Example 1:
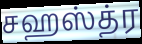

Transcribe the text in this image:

சஹஸ்த்ர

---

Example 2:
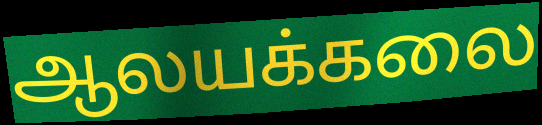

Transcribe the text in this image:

ஆலயக்கலை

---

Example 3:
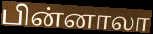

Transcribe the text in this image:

பின்னாலா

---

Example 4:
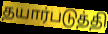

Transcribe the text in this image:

தயார்படுத்தி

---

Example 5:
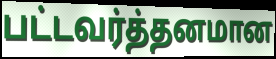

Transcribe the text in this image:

பட்டவர்த்தனமான